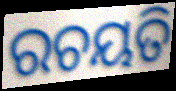
ରଚୟତି